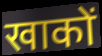
खाकों